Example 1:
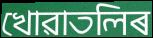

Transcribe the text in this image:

খোৱাতলিৰ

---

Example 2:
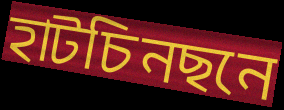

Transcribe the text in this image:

হাটচিনছনে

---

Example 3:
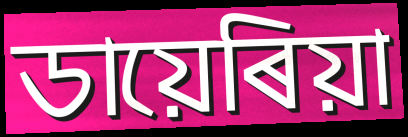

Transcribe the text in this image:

ডায়েৰিয়া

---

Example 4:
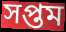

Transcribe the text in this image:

সপ্তম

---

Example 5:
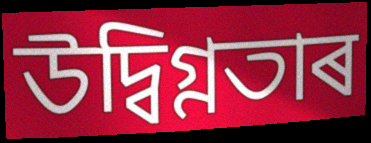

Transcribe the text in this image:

উদ্বিগ্নতাৰ